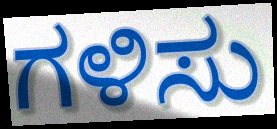
ಗಳಿಸು